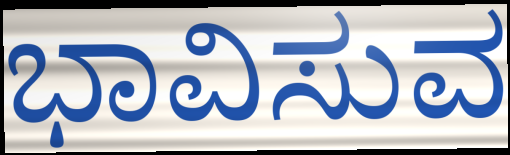
ಭಾವಿಸುವ